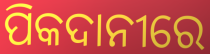
ପିକଦାନୀରେ